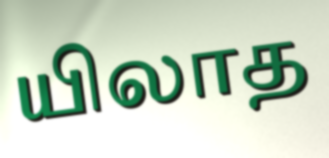
யிலாத